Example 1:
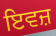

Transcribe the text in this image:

ਇਵਜ਼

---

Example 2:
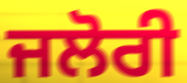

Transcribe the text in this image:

ਜਲੋਰੀ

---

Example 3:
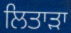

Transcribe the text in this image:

ਲਿਤਾੜਾ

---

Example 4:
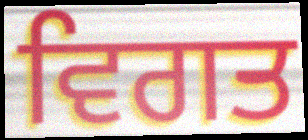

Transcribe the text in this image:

ਵਿਗਤ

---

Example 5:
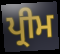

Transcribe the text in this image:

ਪ੍ਰੀਮ